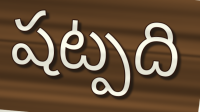
షట్పది